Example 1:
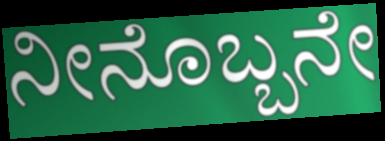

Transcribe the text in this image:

ನೀನೊಬ್ಬನೇ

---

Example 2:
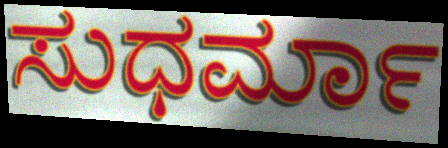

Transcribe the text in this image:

ಸುಧರ್ಮಾ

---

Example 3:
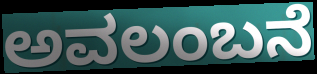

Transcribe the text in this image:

ಅವಲಂಬನೆ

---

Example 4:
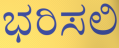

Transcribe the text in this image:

ಭರಿಸಲಿ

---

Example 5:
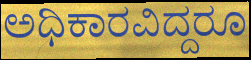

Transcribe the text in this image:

ಅಧಿಕಾರವಿದ್ದರೂ